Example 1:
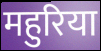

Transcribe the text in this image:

महुरिया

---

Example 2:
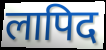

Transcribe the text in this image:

लापिद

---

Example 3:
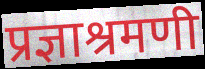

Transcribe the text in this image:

प्रज्ञाश्रमणी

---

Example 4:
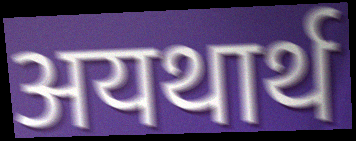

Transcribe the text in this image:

अयथार्थ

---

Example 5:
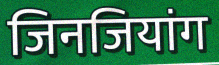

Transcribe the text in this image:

जिनजियांग